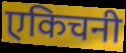
एकिचनी